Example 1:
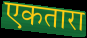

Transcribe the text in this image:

एकतारा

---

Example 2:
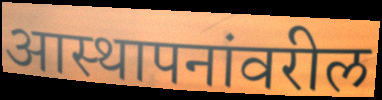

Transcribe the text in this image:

आस्थापनांवरील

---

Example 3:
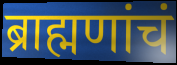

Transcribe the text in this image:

ब्राह्मणांचं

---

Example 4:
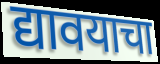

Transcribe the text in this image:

द्यावयाचा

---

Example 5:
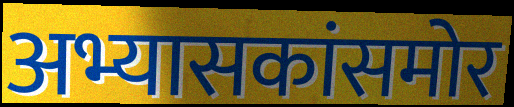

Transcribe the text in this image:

अभ्यासकांसमोर